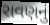
રાવણનું